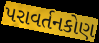
પરાવર્તનકોણ